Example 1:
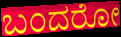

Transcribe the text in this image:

ಬಂದರೋ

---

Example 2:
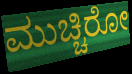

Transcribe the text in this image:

ಮುಚ್ಚಿರೋ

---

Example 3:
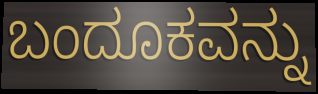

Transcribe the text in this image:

ಬಂದೂಕವನ್ನು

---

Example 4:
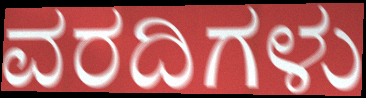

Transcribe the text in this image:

ವರದಿಗಳು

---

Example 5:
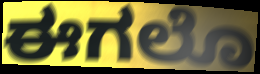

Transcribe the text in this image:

ಈಗಲೊ